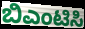
ಬಿಎಂಟಿಸಿ